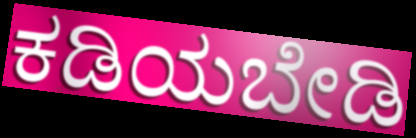
ಕಡಿಯಬೇಡಿ